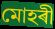
মোহৰী